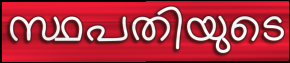
സ്ഥപതിയുടെ